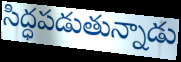
సిద్ధపడుతున్నాడు